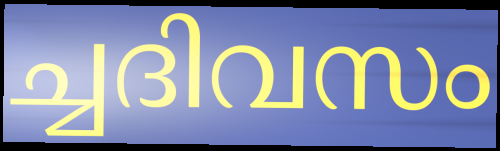
ച്ചദിവസം